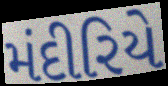
મંદીરિયે